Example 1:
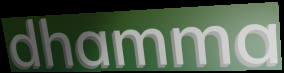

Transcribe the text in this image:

dhamma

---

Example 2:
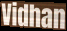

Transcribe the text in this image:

Vidhan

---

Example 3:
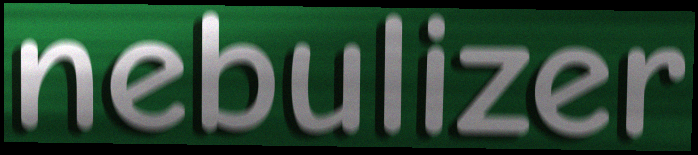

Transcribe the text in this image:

nebulizer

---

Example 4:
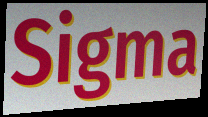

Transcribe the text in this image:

Sigma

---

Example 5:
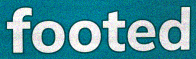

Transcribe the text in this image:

footed